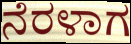
ನೆರಳಾಗ